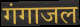
गंगाजल